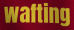
wafting